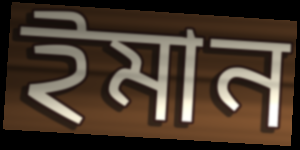
ইমান